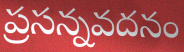
ప్రసన్నవదనం